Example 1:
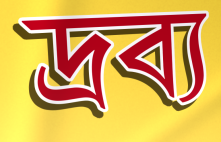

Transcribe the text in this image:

দ্ৰব্য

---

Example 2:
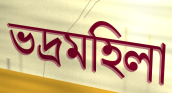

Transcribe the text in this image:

ভদ্ৰমহিলা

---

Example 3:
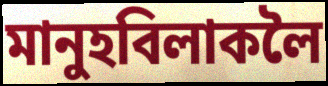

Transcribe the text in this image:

মানুহবিলাকলৈ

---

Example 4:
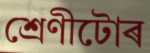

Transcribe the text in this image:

শ্ৰেণীটোৰ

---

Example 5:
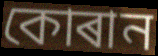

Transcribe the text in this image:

কোৰান